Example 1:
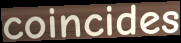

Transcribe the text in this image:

coincides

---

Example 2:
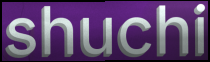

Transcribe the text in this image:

shuchi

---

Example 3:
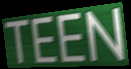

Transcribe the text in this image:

TEEN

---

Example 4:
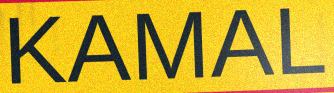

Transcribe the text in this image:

KAMAL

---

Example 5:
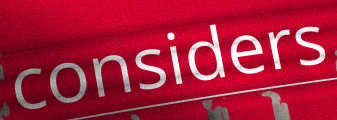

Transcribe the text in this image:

considers